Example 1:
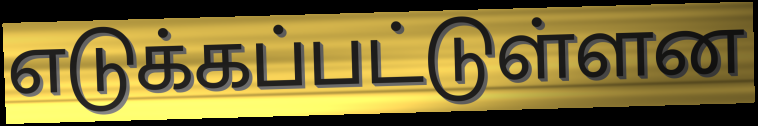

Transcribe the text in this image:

எடுக்கப்பட்டுள்ளன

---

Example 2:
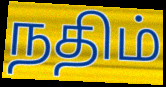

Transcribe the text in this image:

நதிம்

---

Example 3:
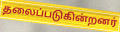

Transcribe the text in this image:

தலைப்படுகின்றனர்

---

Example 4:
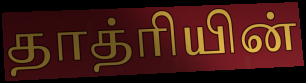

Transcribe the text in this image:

தாத்ரியின்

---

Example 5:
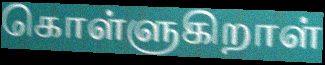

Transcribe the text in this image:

கொள்ளுகிறாள்